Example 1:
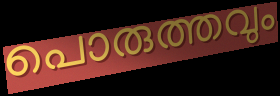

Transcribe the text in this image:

പൊരുത്തവും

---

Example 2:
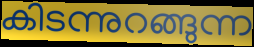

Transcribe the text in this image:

കിടന്നുറങ്ങുന്ന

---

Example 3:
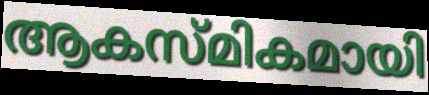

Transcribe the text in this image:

ആകസ്മികമായി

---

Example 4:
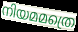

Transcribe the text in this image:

നിയമമത്രെ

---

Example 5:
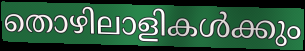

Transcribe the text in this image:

തൊഴിലാളികൾക്കും